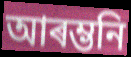
আৰম্ভনি